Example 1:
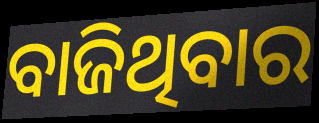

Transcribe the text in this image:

ବାଜିଥିବାର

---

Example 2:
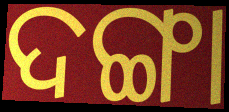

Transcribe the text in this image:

ଦଙ୍ଗା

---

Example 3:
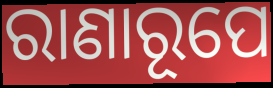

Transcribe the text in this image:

ରାଣାରୂପେ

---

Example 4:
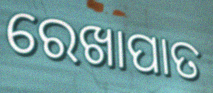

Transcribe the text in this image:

ରେଖାପାତ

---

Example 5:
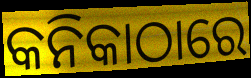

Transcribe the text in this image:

କନିକାଠାରେ